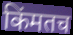
किंमतच